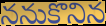
ననుకొనిన